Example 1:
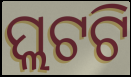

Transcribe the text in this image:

ପ୍ଲଟଟି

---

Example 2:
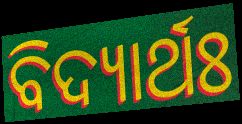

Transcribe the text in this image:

ବିଦ୍ୟାର୍ଥଃ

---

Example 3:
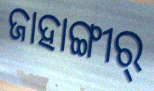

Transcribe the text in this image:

ଜାହାଙ୍ଗୀର୍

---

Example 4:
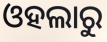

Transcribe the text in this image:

ଓହଲାରୁ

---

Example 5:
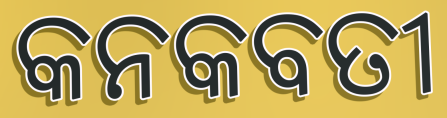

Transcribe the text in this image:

କନକବତୀ